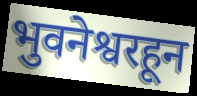
भुवनेश्वरहून